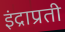
इंद्राप्रती